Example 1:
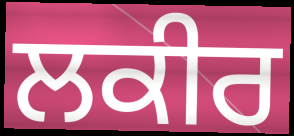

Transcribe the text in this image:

ਲਕੀਰ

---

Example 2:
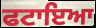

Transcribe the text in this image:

ਫਟਾਇਆ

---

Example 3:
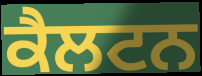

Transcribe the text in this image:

ਕੈਲਟਨ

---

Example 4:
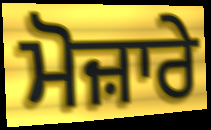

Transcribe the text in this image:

ਮੋਜ਼ਾਰੇ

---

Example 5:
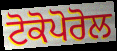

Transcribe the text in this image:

ਟੋਕੋਪੋਰੋਲ